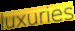
luxuries